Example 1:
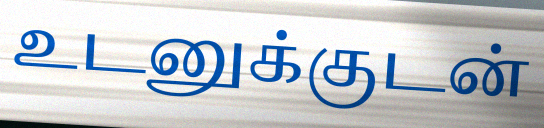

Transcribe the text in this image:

உடனுக்குடன்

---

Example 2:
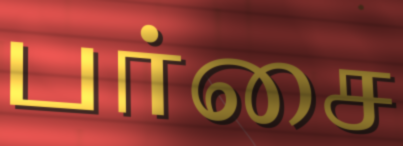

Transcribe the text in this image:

பர்சை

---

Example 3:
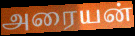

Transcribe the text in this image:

அரையன்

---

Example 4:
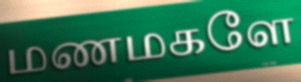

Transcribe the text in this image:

மணமகளே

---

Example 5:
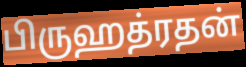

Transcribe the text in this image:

பிருஹத்ரதன்